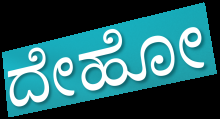
ದೇಹೋ